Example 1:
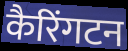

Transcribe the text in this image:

कैरिंगटन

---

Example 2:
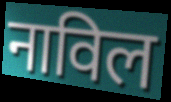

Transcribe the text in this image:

नाविल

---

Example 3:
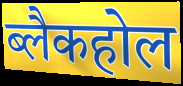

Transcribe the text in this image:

ब्लैकहोल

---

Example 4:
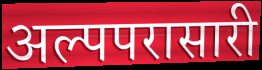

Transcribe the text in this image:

अल्पपरासारी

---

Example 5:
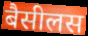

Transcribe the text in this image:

बैसीलस